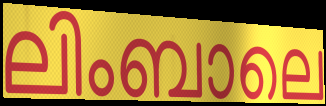
ലിംബാലെ